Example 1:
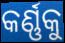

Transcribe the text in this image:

କର୍ଣ୍ଣକୁ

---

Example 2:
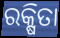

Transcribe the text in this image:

ରକ୍ଷିତା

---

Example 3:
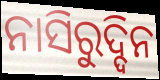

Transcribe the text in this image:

ନାସିରୁଦ୍ଦିନ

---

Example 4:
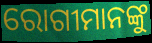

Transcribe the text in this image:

ରୋଗୀମାନଙ୍କୁ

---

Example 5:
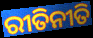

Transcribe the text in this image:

ରୀତିନୀତି